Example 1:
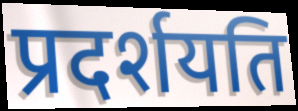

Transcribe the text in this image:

प्रदर्शयति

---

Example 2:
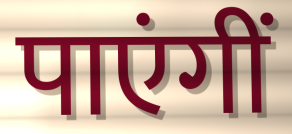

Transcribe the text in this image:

पाएंगीं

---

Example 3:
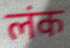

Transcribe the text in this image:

लंक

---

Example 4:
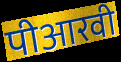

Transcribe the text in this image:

पीआरवी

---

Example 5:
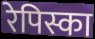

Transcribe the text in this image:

रेपिस्का